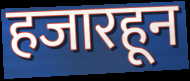
हजारहून